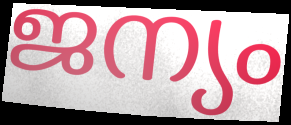
ജന്യം